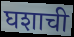
घशाची